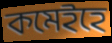
কমেইহে